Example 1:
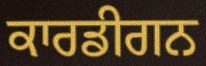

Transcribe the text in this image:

ਕਾਰਡੀਗਨ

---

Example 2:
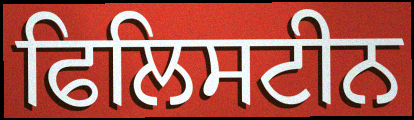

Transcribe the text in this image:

ਫਿਲਿਸਟੀਨ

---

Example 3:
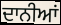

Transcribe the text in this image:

ਦਾਨੀਆਂ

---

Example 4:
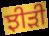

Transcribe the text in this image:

ਝੀੜੀ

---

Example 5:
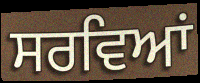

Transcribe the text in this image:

ਸਰਵਿਆਂ